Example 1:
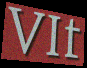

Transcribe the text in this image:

VIt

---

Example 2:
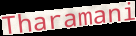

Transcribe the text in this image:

Tharamani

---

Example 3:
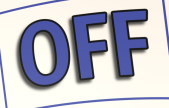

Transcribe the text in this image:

OFF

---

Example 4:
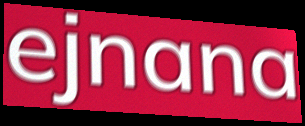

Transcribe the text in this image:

ejnana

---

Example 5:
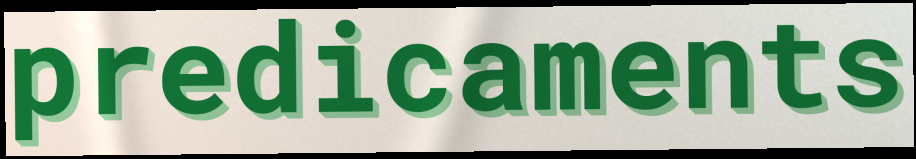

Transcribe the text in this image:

predicaments